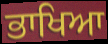
ਭਾਖਿਆ